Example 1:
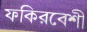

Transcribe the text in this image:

ফকিরবেশী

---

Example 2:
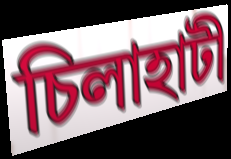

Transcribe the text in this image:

চিলাহাটী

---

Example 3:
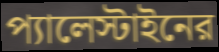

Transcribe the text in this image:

প্যালেস্টাইনের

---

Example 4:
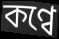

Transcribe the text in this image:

কণ্বে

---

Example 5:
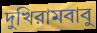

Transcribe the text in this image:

দুখিরামবাবু